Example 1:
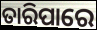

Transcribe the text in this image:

ତାରିପାରେ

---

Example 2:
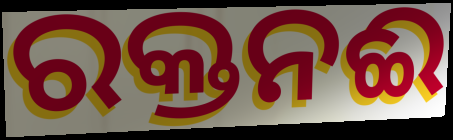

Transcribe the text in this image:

ରକ୍ତନଈ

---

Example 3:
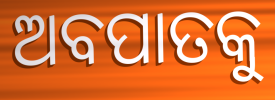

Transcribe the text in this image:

ଅବପାତକୁ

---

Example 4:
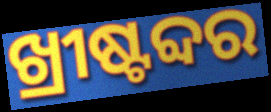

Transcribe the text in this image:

ଖ୍ରୀଷ୍ଟବ୍ଦର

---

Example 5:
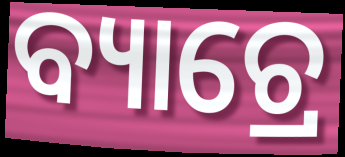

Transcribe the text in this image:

ବ୍ୟାଚ୍ରେ